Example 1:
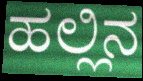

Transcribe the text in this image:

ಹಲ್ಲಿನ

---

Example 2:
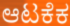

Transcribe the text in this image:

ಆಟಕೆಕ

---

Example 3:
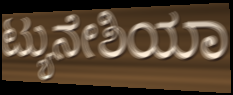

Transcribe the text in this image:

ಟ್ಯುನೇಶಿಯಾ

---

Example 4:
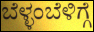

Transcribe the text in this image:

ಬೆಳ್ಳಂಬೆಳಿಗ್ಗೆ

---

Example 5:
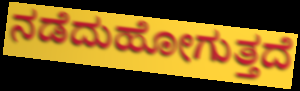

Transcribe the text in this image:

ನಡೆದುಹೋಗುತ್ತದೆ